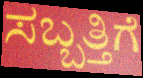
ಸಬ್ಬತ್ತಿಗೆ